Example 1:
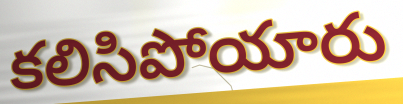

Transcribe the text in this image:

కలిసిపోయారు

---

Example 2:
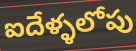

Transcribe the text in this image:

ఐదేళ్ళలోపు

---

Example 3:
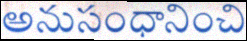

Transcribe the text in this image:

అనుసంధానించి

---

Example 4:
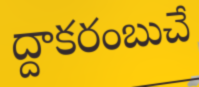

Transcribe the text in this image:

ద్దాకరంబుచే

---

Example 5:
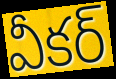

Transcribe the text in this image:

వీకర్